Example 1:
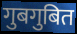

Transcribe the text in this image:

गुबगुबित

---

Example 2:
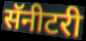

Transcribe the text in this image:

सॅनीटरी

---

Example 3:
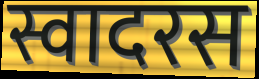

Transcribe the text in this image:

स्वादरस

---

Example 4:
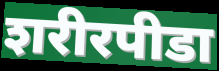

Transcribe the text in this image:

शरीरपीडा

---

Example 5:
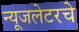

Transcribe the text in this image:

न्यूजलेटरचे